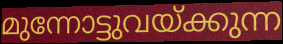
മുന്നോട്ടുവയ്ക്കുന്ന